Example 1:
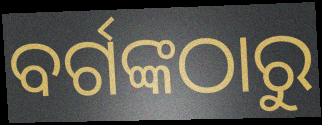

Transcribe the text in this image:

ବର୍ଗଙ୍କଠାରୁ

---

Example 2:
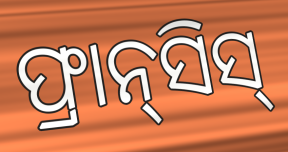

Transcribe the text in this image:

ଫ୍ରାନ୍‌ସିସ୍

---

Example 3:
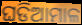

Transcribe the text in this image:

ଘଡିଆମାଳ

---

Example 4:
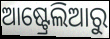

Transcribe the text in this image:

ଆଷ୍ଟ୍ରେଲିଆରୁ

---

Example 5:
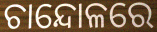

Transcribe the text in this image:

ଚାନ୍ଦୋଳରେ